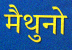
मैथुनो